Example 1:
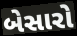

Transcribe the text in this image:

બેસારો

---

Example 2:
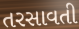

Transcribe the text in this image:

તરસાવતી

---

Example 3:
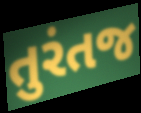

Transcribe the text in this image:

તુરંતજ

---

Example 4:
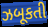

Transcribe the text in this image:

ઝબૂકતી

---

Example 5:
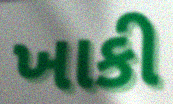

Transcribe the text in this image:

ખાકી